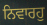
ਨਿਵਾਰਹੁ